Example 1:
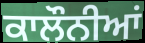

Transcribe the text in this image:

ਕਾਲੌਨੀਆਂ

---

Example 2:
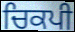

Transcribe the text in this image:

ਚਿਕਪੀ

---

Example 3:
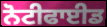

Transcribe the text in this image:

ਨੋਟੀਫਾਈਡ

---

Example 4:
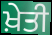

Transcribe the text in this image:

ਖ਼ੇਤੀ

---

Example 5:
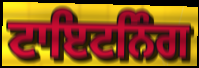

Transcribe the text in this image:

ਟਾਇਟਨਿੰਗ